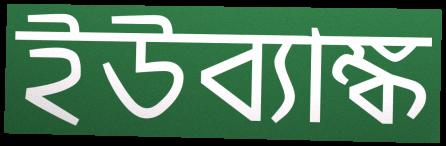
ইউব্যাঙ্ক